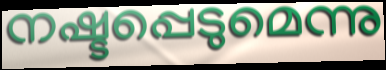
നഷ്ടപ്പെടുമെന്നു